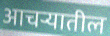
आचऱ्यातील